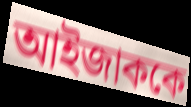
আইজাককে